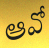
ఆవో